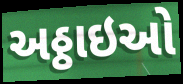
અઠ્ઠાઇઓ